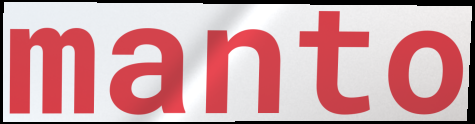
manto